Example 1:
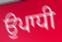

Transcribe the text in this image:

ਉਪਾਧੀ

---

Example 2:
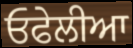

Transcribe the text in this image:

ਓਫੇਲੀਆ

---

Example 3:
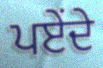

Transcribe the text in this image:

ਪਏਂਦੇ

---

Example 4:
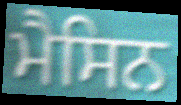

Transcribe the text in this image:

ਮੈਸਿਨ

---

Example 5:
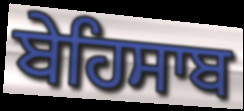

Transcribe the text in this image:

ਬੇਹਿਸਾਬ